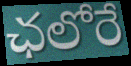
ఛలోరే